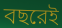
বছরেই